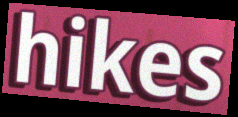
hikes